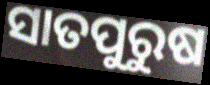
ସାତପୁରୁଷ